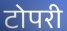
टोपरी